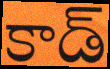
కాడ్